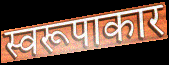
स्वरूपाकार